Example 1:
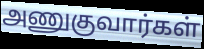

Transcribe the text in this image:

அணுகுவார்கள்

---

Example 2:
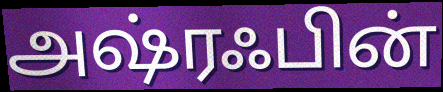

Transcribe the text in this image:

அஷ்ரஃபின்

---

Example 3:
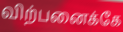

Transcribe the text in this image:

விற்பனைக்கே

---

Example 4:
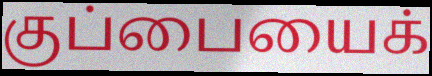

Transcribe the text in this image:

குப்பையைக்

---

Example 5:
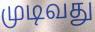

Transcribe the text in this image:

முடிவது